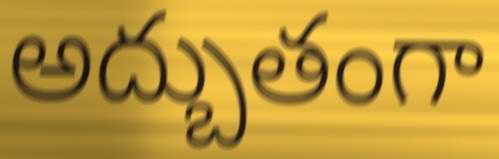
అద్బుతంగా